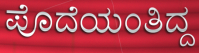
ಪೊದೆಯಂತಿದ್ದ